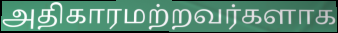
அதிகாரமற்றவர்களாக